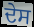
ਦੇਸ